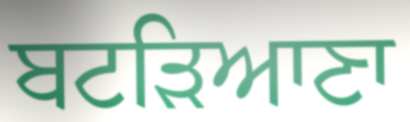
ਬਟੜਿਆਣਾ